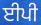
ਈਪੀ